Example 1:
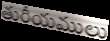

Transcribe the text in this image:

తురీయములు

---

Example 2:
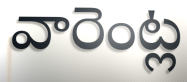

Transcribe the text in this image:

వారెంట్ల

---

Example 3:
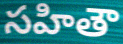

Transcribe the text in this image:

సహితౌ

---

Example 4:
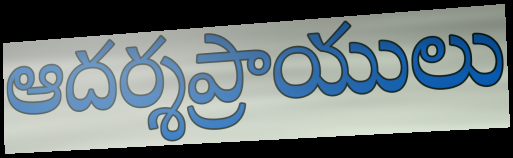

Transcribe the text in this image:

ఆదర్శప్రాయులు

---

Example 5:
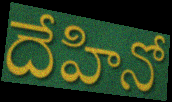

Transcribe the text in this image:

దేహినో